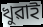
খুৱাই